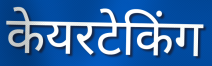
केयरटेकिंग